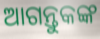
ଆଗନ୍ତୁକଙ୍କ